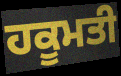
ਹਕੂਮਤੀ